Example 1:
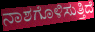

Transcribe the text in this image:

ನಾಶಗೊಳಿಸುತ್ತಿದೆ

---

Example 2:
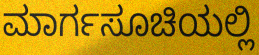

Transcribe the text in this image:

ಮಾರ್ಗಸೂಚಿಯಲ್ಲಿ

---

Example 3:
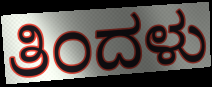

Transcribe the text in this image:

ತಿಂದಳು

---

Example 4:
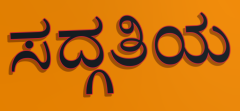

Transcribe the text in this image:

ಸದ್ಗತಿಯ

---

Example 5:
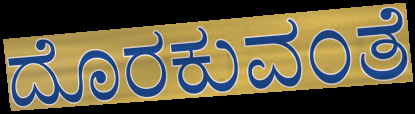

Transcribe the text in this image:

ದೊರಕುವಂತೆ